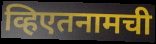
व्हिएतनामची